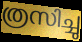
ത്രസിച്ചു